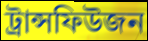
ট্ৰান্সফিউজন